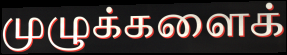
முழுக்களைக்